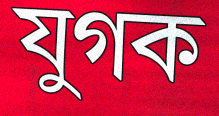
যুগক